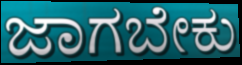
ಜಾಗಬೇಕು